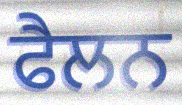
ਫੈਲਨ